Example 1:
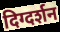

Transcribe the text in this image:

दिग्दर्शन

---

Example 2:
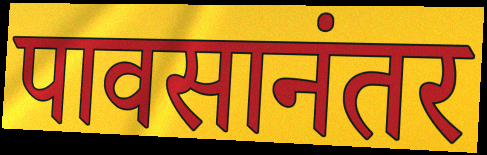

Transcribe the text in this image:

पावसानंतर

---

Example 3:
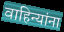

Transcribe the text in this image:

वाहिन्यांना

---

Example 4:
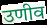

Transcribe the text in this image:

उणीव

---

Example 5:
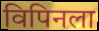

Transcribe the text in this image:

विपिनला